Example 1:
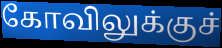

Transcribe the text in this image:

கோவிலுக்குச்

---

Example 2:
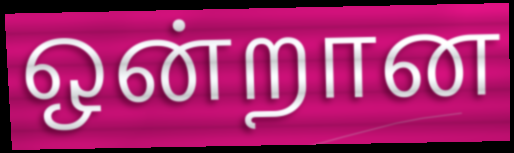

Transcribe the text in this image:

ஒன்றான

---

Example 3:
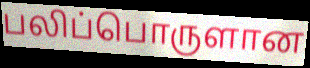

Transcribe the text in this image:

பலிப்பொருளான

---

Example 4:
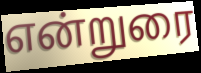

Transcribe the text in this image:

என்றுரை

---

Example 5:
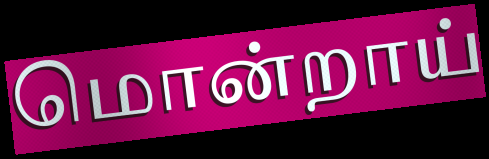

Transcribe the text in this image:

மொன்றாய்